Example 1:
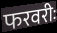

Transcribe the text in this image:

फरवरीः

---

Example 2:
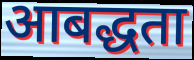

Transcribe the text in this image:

आबद्धता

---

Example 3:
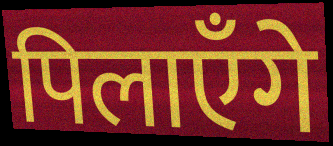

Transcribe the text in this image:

पिलाएँगे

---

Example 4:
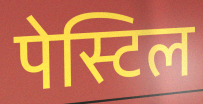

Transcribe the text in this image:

पेस्टिल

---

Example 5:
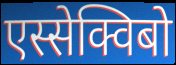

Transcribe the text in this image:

एस्सेक्विबो